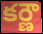
కర్ణౌ